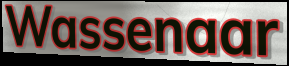
Wassenaar